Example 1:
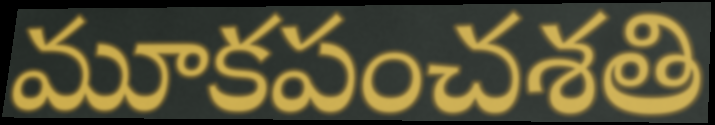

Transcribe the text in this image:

మూకపంచశతి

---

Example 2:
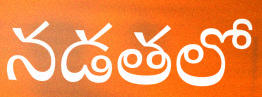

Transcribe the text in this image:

నడతలో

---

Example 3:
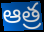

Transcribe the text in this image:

ఆత్ర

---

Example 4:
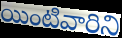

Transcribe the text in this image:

యింటివారిని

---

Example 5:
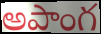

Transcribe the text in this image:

అపాంగ